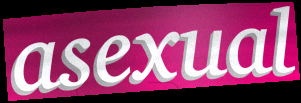
asexual